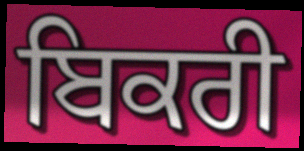
ਬਿਕਰੀ